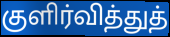
குளிர்வித்துத்